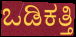
ಒಡಿಕತ್ತಿ